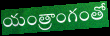
యంత్రాంగంతో